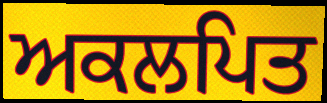
ਅਕਲਪਿਤ